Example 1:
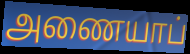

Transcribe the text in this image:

அணையாப்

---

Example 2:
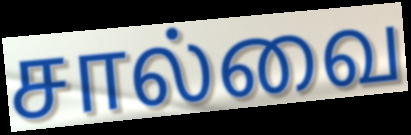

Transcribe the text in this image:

சால்வை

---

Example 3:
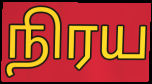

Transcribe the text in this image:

நிரய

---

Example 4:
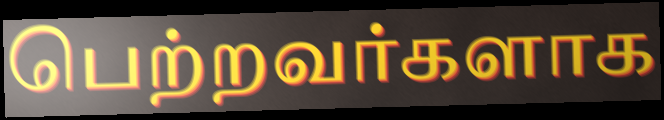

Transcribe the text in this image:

பெற்றவர்களாக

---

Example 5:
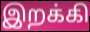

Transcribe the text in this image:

இறக்கி